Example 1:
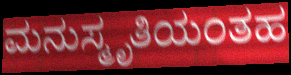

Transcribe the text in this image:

ಮನುಸ್ಮೃತಿಯಂತಹ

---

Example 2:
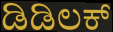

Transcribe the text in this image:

ಡಿಡಿಲಕ್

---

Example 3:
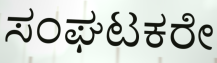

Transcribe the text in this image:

ಸಂಘಟಕರೇ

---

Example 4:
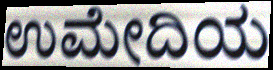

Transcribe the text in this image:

ಉಮೇದಿಯ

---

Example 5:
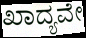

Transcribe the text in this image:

ಖಾದ್ಯವೇ